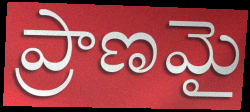
ప్రాణమై